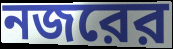
নজরের